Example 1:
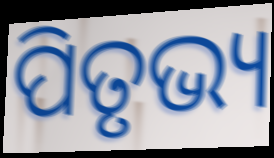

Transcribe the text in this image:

ପିତୃଭ୍ୟ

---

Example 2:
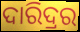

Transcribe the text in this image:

ଦାରିଦ୍ରର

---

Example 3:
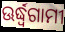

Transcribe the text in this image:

ଊର୍ଦ୍ଧ୍ୱଗାମୀ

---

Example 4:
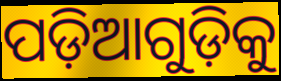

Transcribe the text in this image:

ପଡ଼ିଆଗୁଡ଼ିକୁ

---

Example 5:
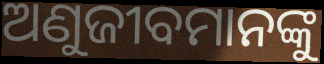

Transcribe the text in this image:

ଅଣୁଜୀବମାନଙ୍କୁ